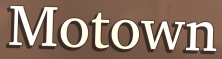
Motown